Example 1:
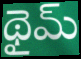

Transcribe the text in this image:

థైమ్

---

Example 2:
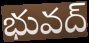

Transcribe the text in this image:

భువద్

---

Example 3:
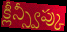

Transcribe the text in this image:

క్లీన్స్వీప్కు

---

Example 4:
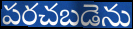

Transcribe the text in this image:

పరచబడెను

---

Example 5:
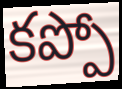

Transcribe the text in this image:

కప్పో